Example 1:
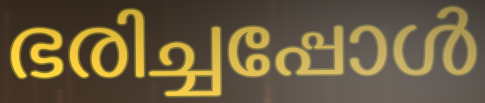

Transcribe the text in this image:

ഭരിച്ചപ്പോൾ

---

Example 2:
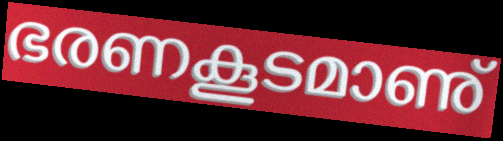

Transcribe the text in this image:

ഭരണകൂടമാണു്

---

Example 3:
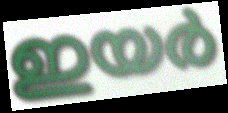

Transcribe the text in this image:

ഇയർ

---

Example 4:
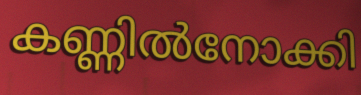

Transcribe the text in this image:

കണ്ണിൽനോക്കി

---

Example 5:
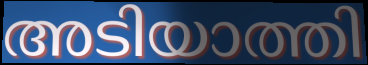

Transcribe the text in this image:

അടിയാത്തി